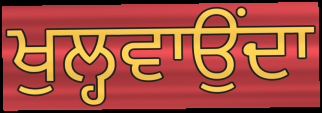
ਖੁਲ੍ਹਵਾਉਂਦਾ